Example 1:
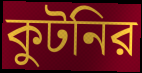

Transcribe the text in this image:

কুটনির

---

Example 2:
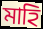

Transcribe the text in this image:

মাহি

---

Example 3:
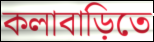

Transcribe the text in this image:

কলাবাড়িতে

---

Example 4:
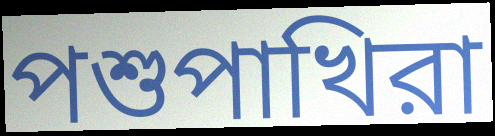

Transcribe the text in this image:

পশুপাখিরা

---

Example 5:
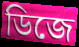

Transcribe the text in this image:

ডিজে